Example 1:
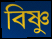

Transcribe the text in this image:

বিষ্ণু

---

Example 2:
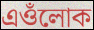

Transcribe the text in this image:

এওঁলোক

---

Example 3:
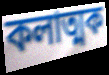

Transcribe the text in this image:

কলাত্মক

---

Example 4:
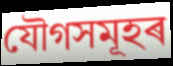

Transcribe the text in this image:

যৌগসমূহৰ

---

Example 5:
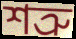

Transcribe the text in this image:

শত্ৰু